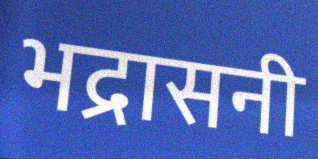
भद्रासनी